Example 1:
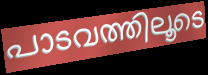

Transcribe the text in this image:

പാടവത്തിലൂടെ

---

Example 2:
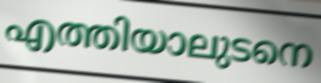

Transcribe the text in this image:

എത്തിയാലുടനെ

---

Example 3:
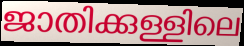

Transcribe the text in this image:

ജാതിക്കുള്ളിലെ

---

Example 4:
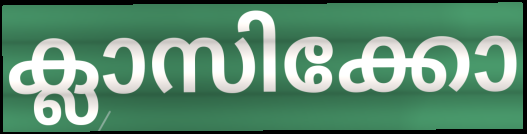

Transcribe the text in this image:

ക്ലാസിക്കോ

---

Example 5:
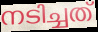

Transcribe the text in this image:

നടിച്ചത്